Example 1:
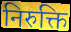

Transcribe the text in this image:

निरुक्ति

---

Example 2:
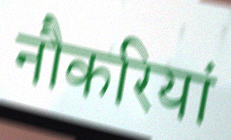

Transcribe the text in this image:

नौकरियां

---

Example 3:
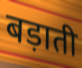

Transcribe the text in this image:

बड़ाती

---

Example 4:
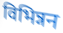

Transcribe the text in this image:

विभिन्नन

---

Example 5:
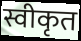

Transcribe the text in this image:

स्वीकृत